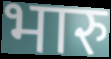
भारु